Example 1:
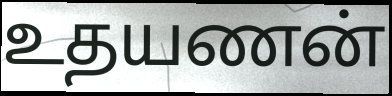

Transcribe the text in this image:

உதயணன்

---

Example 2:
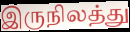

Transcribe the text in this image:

இருநிலத்து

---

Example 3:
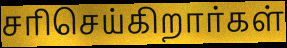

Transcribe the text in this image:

சரிசெய்கிறார்கள்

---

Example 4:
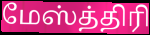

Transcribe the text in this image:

மேஸ்த்திரி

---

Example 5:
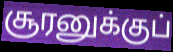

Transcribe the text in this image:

சூரனுக்குப்